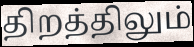
திறத்திலும்